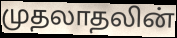
முதலாதலின்